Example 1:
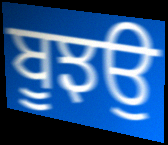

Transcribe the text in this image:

ਬੂਝਉ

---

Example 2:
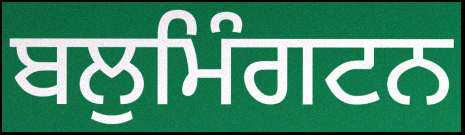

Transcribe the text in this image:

ਬਲੁਮਿੰਗਟਨ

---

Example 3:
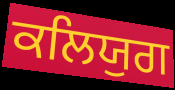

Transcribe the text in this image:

ਕਲਿਯੁਗ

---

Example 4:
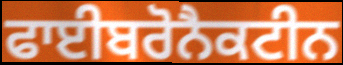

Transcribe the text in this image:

ਫਾਈਬਰੋਨੈਕਟੀਨ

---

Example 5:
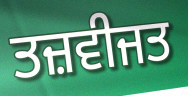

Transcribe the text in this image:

ਤਜ਼ਵੀਜਤ